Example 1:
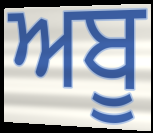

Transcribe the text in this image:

ਅਬੂ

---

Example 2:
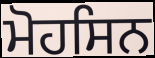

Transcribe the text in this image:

ਮੋਹਸਿਨ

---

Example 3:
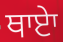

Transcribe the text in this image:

ਥਾਏਾ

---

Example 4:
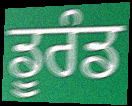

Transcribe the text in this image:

ਡੂਰੰਡ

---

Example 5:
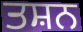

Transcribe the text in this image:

ਤਸ਼ਨ